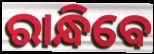
ରାନ୍ଧିବେ